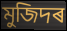
মুজিদৰ